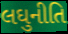
લઘુનીતિ